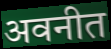
अवनीत